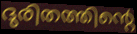
ദുരിതത്തിന്റെ